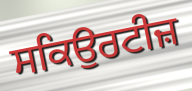
ਸਕਿਉਰਟੀਜ਼